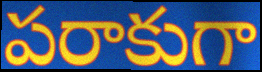
పరాకుగా